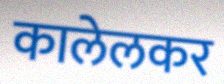
कालेलकर